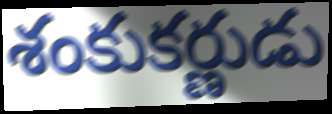
శంకుకర్ణుడు